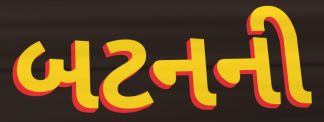
બટનની